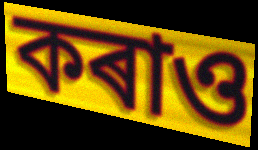
কৰাও